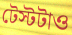
টেস্টটাও